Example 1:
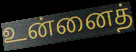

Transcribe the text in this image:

உன்னைத்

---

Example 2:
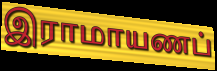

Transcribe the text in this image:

இராமாயணப்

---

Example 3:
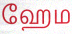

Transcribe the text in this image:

ஹேம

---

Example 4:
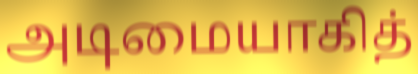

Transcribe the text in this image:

அடிமையாகித்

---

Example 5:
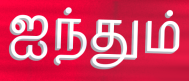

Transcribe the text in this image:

ஐந்தும்